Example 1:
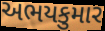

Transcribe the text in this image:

અભયકુમાર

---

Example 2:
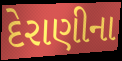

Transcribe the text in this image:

દેરાણીના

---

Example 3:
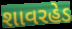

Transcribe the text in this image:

શાવરહેડ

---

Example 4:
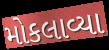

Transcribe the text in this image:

મોકલાવ્યા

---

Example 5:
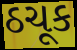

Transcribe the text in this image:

ઠચૂક